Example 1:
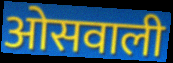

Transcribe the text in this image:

ओसवाली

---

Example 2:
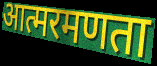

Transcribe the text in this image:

आत्मरमणता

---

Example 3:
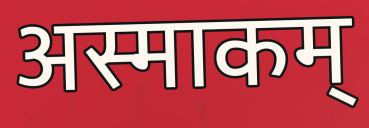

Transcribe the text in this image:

अस्माकम्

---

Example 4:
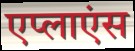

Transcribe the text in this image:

एप्लाएंस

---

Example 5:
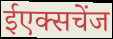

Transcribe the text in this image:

ईएक्सचेंज